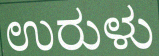
ಉರುಳು